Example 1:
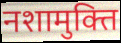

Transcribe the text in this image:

नशामुक्ति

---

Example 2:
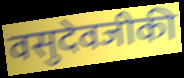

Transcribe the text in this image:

वसुदेवजीकी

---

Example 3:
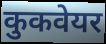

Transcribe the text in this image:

कुकवेयर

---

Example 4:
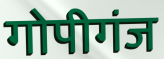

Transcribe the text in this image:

गोपीगंज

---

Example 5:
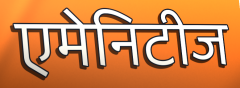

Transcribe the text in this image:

एमेनिटीज